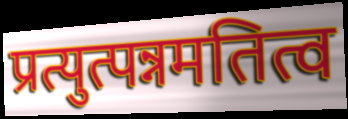
प्रत्युत्पन्नमतित्व